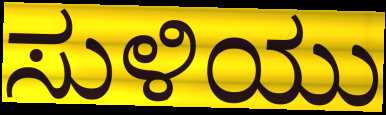
ಸುಳಿಯು